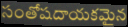
సంతోషదాయకమైన